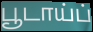
பூடாய்ப்